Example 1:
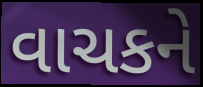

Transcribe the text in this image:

વાચકને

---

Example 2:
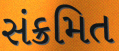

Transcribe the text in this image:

સંક્રમિત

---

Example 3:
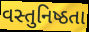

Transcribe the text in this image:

વસ્તુનિષ્ઠતા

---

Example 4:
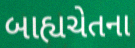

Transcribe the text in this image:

બાહ્યચેતના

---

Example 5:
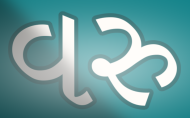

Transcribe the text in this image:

વરુ